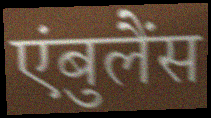
एंबुलैंस